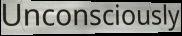
Unconsciously